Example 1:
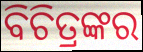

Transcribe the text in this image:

ବିଚିତ୍ରଙ୍କର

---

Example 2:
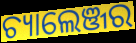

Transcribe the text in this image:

ଚ୍ୟାଲେଞ୍ଜର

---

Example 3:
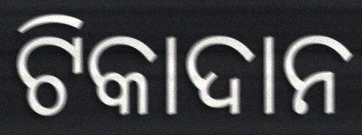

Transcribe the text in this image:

ଟିକାଦାନ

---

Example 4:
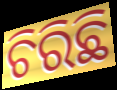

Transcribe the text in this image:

ଚିରିଛି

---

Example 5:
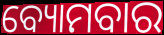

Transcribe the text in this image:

ବ୍ୟୋମବାର